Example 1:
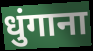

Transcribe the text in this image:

धुंगाना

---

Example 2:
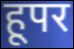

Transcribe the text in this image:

हूपर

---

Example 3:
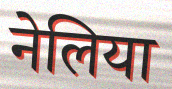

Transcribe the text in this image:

नेलिया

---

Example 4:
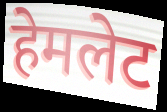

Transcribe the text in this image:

हेमलेट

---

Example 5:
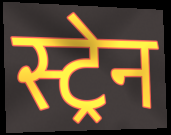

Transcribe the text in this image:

स्ट्रेन